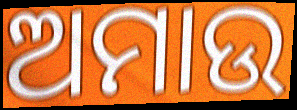
ଅମାଉ